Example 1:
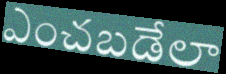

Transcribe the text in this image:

ఎంచబడేలా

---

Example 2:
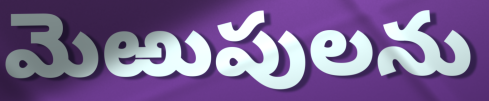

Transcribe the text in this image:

మెఱుపులను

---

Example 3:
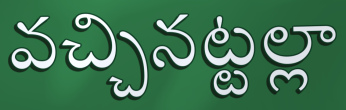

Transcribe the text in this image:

వచ్చినట్టల్లా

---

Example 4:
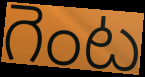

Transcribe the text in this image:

గెంట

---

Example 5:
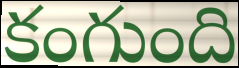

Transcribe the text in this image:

కంగుంది